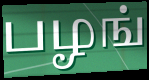
பழங்